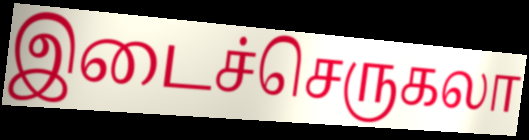
இடைச்செருகலா